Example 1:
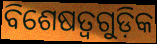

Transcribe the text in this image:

ବିଶେଷତ୍ୱଗୁଡ଼ିକ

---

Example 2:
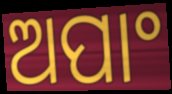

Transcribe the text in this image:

ଅପାଂ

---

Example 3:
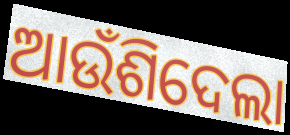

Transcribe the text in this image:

ଆଉଁଶିଦେଲା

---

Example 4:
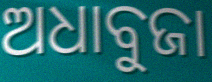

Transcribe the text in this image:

ଅଧାବୁଜା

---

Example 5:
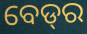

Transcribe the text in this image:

ବେଡ୍‍ର